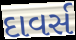
દાવર્સ